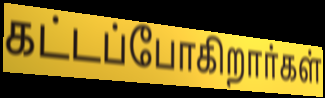
கட்டப்போகிறார்கள்